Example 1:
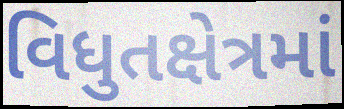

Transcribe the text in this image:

વિધુતક્ષેત્રમાં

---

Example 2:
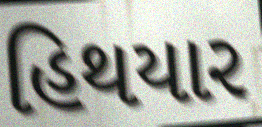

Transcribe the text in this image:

હિથયાર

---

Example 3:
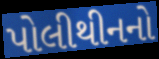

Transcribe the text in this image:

પોલીથીનનો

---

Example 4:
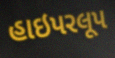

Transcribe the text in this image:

હાઇપરલૂપ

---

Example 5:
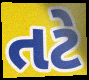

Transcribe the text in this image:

તટે